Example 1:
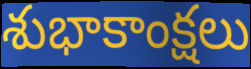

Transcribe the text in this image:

శుభాకాంక్షలు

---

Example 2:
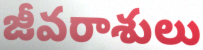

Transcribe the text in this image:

జీవరాశులు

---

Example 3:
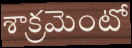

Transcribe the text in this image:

శాక్రమెంటో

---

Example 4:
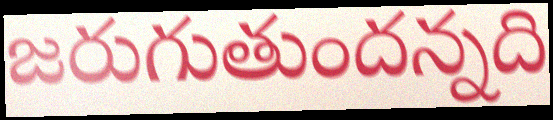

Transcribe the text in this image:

జరుగుతుందన్నది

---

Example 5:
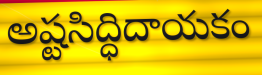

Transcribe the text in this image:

అష్టసిద్ధిదాయకం